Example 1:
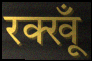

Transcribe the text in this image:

रक्खूँ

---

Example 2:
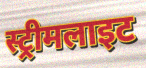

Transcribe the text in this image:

स्ट्रीमलाइट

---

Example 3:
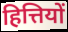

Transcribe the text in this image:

हित्तियों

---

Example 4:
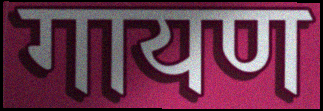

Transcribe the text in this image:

गायण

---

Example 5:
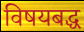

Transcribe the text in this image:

विषयबद्ध